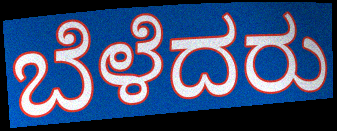
ಬೆಳೆದರು